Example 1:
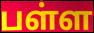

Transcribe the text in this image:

பள்ள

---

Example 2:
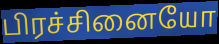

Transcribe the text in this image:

பிரச்சினையோ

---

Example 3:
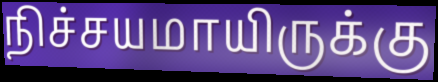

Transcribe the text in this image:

நிச்சயமாயிருக்கு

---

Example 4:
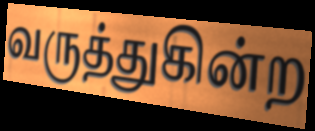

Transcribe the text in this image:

வருத்துகின்ற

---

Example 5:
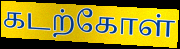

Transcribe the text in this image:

கடற்கோள்